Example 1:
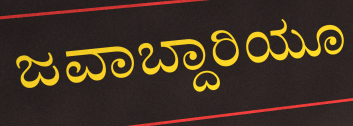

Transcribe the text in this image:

ಜವಾಬ್ದಾರಿಯೂ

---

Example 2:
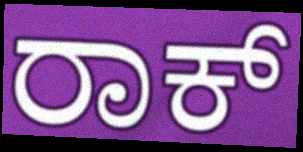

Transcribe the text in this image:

ರಾಕ್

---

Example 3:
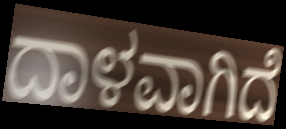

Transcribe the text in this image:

ದಾಳವಾಗಿದೆ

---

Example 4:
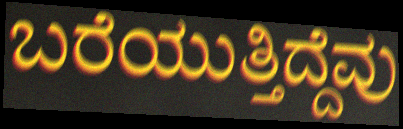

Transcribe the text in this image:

ಬರೆಯುತ್ತಿದ್ದೆವು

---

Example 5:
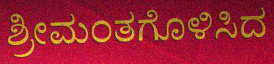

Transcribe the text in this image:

ಶ್ರೀಮಂತಗೊಳಿಸಿದ